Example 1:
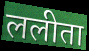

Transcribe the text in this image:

ललीता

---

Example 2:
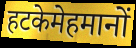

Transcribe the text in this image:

हटकेमेहमानों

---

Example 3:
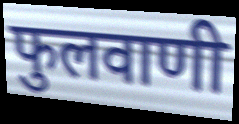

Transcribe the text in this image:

फुलवाणी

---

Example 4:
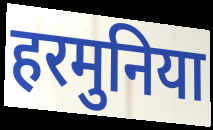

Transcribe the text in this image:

हरमुनिया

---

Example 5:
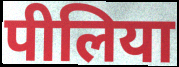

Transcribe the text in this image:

पीलिया